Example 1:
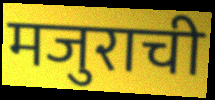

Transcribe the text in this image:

मजुराची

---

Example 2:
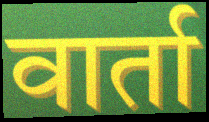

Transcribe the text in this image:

वार्ता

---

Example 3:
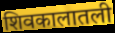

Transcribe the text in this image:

शिवकालातली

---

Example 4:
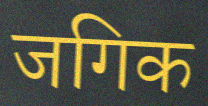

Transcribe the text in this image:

जगिक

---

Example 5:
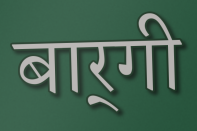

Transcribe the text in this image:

बार्गी